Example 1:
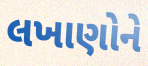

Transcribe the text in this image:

લખાણોને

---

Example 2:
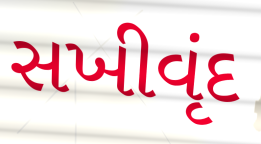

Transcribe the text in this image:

સખીવૃંદ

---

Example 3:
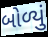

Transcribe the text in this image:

બોળ્યું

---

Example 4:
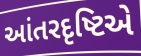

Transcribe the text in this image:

આંતરદૃષ્ટિએ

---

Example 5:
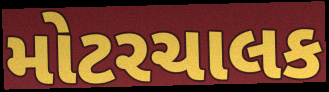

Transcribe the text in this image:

મોટરચાલક